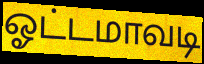
ஓட்டமாவடி